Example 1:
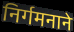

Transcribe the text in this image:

निर्गमनाने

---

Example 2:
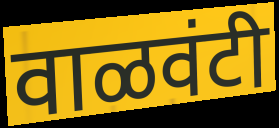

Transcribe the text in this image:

वाळवंटी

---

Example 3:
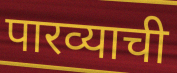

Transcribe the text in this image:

पारव्याची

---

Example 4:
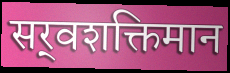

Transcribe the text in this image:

सर्वशक्तिमान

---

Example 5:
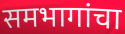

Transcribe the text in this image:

समभागांचा